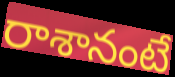
రాశానంటే